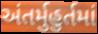
અંતર્મુહુર્તમાં